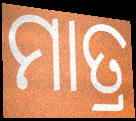
ମାତ୍ର